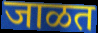
जाळत